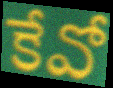
కేవో